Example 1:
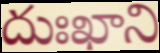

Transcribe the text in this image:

దుఃఖాని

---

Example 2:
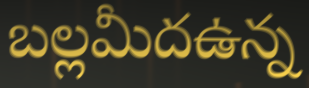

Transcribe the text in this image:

బల్లమీదఉన్న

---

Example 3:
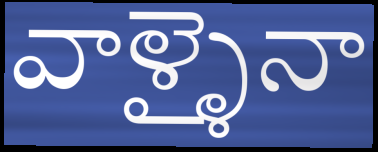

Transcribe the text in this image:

వాళ్ళైనా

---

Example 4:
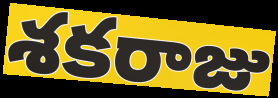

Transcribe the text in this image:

శకరాజు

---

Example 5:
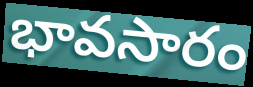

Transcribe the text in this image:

భావసారం